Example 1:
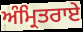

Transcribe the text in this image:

ਅੰਮ੍ਰਿਤਰਾਏ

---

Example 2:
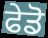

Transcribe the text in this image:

ਫੇਡੋ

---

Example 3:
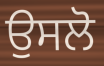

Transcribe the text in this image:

ਉਸਲੋ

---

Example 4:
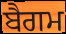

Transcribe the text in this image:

ਬੈਗਮ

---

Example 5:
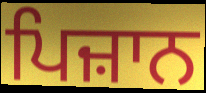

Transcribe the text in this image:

ਪਿਜ਼ਾਨ